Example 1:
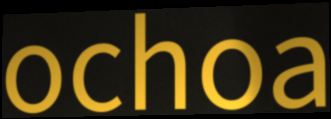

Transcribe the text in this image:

ochoa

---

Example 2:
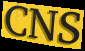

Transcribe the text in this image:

CNS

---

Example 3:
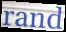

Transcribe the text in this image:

rand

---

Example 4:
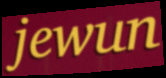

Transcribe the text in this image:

jewun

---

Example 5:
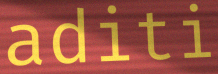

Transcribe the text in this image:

aditi